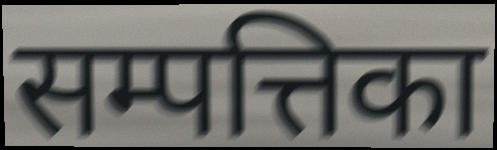
सम्पत्तिका